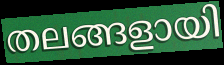
തലങ്ങളായി